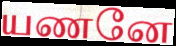
யணனே